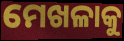
ମେଖଳାକୁ